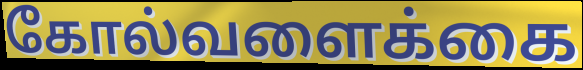
கோல்வளைக்கை